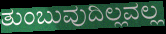
ತುಂಬುವುದಿಲ್ಲವಲ್ಲ